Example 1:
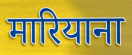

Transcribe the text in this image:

मारियाना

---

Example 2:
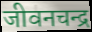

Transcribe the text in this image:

जीवनचन्द्र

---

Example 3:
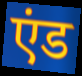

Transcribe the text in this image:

एंड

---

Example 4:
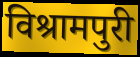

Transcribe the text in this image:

विश्रामपुरी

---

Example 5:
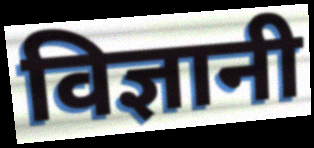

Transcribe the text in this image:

विज्ञानी